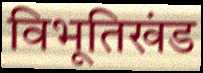
विभूतिखंड